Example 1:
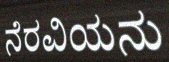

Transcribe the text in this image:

ನೆರವಿಯನು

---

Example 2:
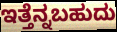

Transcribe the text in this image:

ಇತ್ತೆನ್ನಬಹುದು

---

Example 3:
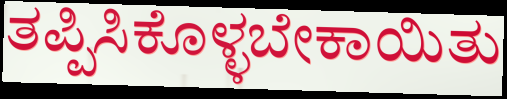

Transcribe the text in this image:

ತಪ್ಪಿಸಿಕೊಳ್ಳಬೇಕಾಯಿತು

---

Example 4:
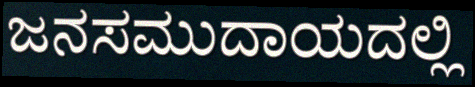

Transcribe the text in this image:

ಜನಸಮುದಾಯದಲ್ಲಿ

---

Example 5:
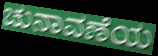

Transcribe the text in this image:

ಚುನಾವಣೆಯ